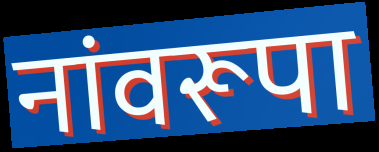
नांवरूपा